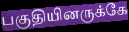
பகுதியினருக்கே